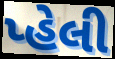
પ્હેલી